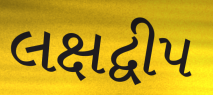
લક્ષદ્વીપ